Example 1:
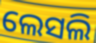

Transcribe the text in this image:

ଲେସଲି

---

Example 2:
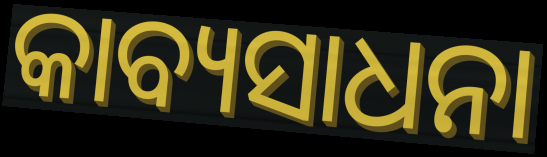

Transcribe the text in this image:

କାବ୍ୟସାଧନା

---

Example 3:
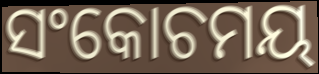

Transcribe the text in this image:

ସଂକୋଚମୟ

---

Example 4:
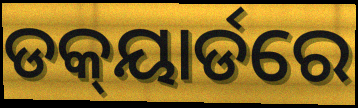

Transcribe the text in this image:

ଡକ୍‍ୟାର୍ଡରେ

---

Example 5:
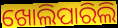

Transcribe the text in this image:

ଖୋଲିପାରିଲି